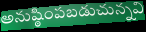
అనుష్ఠింపబడుచున్నవి